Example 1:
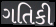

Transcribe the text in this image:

ગતિકી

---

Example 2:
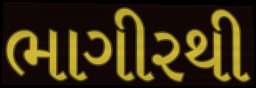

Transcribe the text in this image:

ભાગીરથી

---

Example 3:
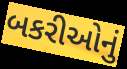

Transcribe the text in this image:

બકરીઓનું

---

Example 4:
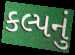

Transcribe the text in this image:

કલ્પનું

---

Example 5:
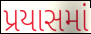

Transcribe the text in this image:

પ્રયાસમાં